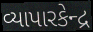
વ્યાપારકેન્દ્ર